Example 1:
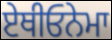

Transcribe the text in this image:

ਏਥੀਓਨੇਮਾ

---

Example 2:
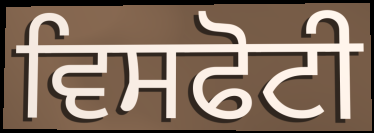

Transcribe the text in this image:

ਵਿਸਫੋਟੀ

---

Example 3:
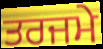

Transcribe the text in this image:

ਤਰਜਮੇ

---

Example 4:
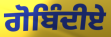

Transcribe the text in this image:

ਗੋਬਿੰਦੀਏ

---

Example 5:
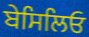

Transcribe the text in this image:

ਬੇਸਿਲਿਓ